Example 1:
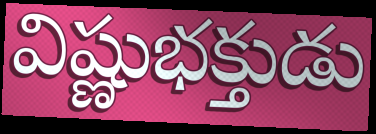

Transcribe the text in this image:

విష్ణుభక్తుడు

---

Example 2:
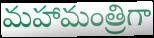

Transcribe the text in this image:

మహామంత్రిగా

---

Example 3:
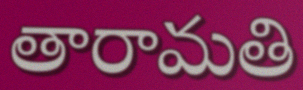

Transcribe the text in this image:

తారామతి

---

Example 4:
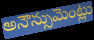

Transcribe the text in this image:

అనౌన్సుమెంట్లు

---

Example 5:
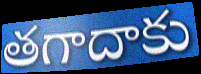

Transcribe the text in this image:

తగాదాకు